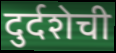
दुर्दशेची